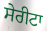
ਸੇਰੀਟਾ